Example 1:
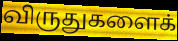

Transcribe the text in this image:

விருதுகளைக்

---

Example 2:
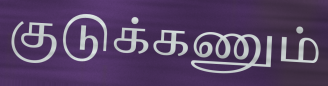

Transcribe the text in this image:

குடுக்கணும்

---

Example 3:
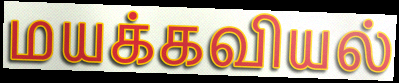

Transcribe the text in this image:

மயக்கவியல்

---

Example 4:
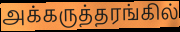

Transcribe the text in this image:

அக்கருத்தரங்கில்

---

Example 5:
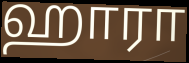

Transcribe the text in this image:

ஹாரா